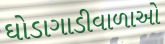
ઘોડાગાડીવાળાઓ